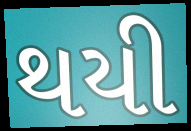
થયી